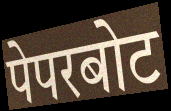
पेपरबोट